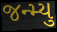
જન્મ્યુ